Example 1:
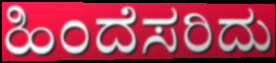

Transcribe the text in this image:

ಹಿಂದೆಸರಿದು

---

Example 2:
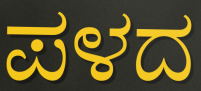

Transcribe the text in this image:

ಪಳದ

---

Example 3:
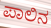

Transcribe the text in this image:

ಪಾಲಿನ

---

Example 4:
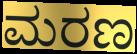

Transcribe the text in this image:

ಮರಣ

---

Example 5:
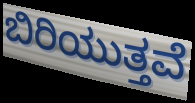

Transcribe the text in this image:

ಬಿರಿಯುತ್ತವೆ